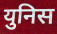
युनिस